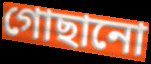
গোছানো